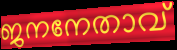
ജനനേതാവ്